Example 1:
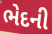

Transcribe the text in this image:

ભેદની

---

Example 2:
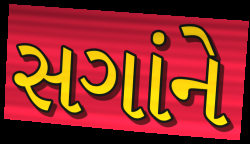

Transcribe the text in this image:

સગાંને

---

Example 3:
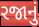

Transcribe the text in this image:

રજાનું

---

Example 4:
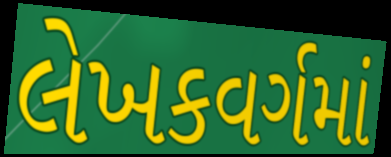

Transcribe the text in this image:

લેખકવર્ગમાં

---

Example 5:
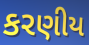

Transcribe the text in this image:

કરણીય